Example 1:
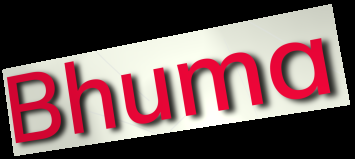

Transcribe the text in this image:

Bhuma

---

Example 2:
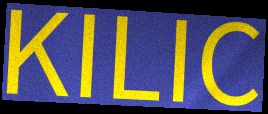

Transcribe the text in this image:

KILIC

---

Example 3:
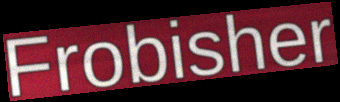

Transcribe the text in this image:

Frobisher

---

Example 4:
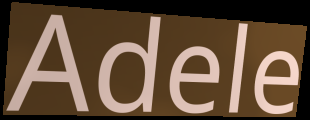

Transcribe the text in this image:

Adele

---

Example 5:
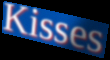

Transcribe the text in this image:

Kisses